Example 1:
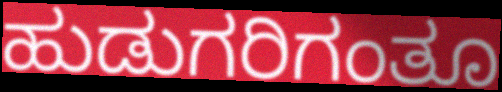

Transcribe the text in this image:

ಹುಡುಗರಿಗಂತೂ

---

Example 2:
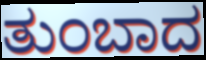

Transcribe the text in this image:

ತುಂಬಾದ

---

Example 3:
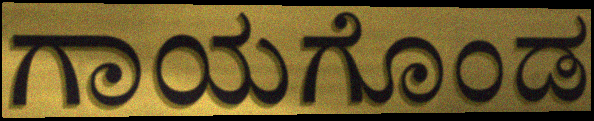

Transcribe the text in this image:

ಗಾಯಗೊಂಡ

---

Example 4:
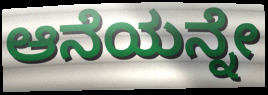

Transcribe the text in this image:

ಆನೆಯನ್ನೇ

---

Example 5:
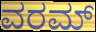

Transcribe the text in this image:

ವರಮ್